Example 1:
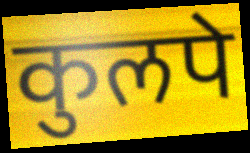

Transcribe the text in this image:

कुलपे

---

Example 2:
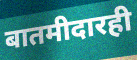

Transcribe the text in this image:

बातमीदारही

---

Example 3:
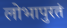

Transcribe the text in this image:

लोभापुरतं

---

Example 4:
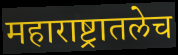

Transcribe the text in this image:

महाराष्ट्रातलेच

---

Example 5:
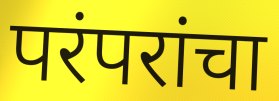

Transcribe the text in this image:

परंपरांचा